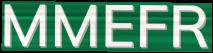
MMEFR